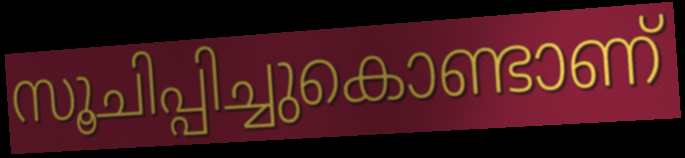
സൂചിപ്പിച്ചുകൊണ്ടാണ്